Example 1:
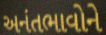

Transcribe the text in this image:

અનંતભાવોને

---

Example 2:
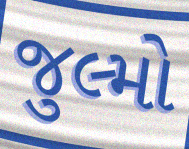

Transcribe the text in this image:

જુલ્મો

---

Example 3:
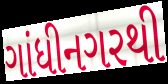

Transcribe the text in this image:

ગાંધીનગરથી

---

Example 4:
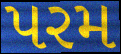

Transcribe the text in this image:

પરમ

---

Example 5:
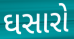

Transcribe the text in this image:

ઘસારો